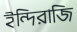
ইন্দিরাজি